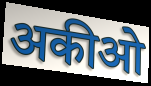
अकीओ